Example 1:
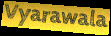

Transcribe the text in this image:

Vyarawala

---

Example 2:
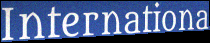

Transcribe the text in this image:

Internationa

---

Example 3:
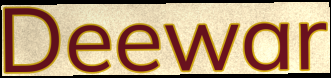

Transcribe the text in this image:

Deewar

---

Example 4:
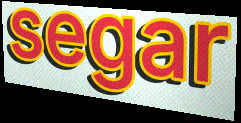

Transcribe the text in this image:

segar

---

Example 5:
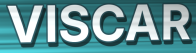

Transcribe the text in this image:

VISCAR